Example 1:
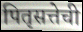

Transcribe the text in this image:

पितृसत्तेची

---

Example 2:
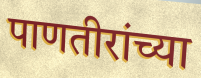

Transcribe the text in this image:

पाणतीरांच्या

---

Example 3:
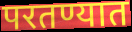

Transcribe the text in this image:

परतण्यात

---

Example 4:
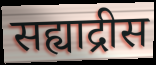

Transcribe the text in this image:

सह्याद्रीस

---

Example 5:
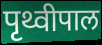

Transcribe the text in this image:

पृथ्वीपाल